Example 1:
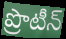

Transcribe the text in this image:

ప్రొటీన్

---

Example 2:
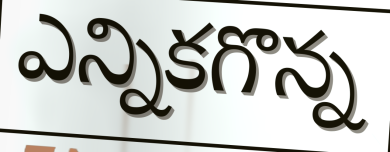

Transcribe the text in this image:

ఎన్నికగొన్న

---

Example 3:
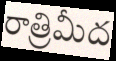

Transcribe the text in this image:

రాత్రిమీద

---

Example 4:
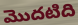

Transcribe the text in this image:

మొదటిది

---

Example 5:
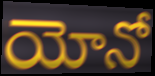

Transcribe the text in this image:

యోనో